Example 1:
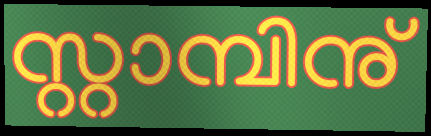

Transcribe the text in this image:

സ്റ്റാമ്പിനു്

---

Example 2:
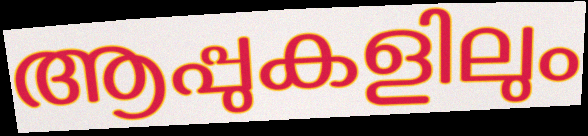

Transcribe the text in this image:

ആപ്പുകളിലും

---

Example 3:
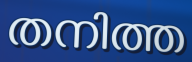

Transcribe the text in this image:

തനിത്ത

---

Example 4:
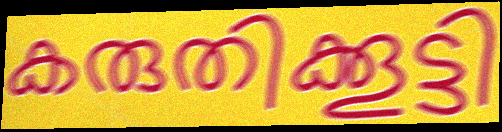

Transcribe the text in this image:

കരുതിക്കൂട്ടി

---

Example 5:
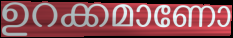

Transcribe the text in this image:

ഉറക്കമാണോ